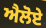
ਐਲੋਏ